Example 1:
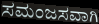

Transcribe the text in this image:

ಸಮಂಜಸವಾಗಿ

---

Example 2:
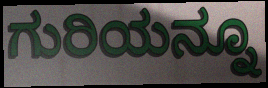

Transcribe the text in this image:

ಗುರಿಯನ್ನೂ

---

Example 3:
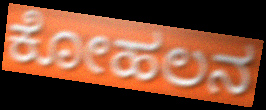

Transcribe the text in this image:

ಕೋಹಲನ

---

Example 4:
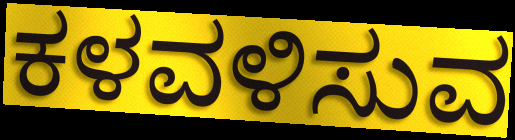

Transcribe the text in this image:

ಕಳವಳಿಸುವ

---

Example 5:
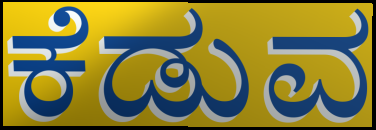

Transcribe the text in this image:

ಕೆಡುವ